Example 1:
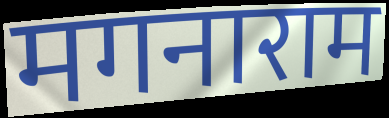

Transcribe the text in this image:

मगनाराम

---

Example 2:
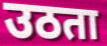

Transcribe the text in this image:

उठता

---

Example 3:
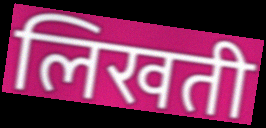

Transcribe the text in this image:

लिखती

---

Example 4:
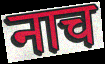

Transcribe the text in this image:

नाच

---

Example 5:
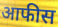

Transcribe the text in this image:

आफीस